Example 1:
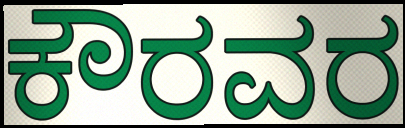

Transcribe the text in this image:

ಕೌರವರ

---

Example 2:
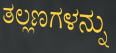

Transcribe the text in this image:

ತಲ್ಲಣಗಳನ್ನು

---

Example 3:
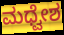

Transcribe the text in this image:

ಮಧ್ವೇಶ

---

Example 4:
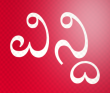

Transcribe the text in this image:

ವಿನ್ದಿ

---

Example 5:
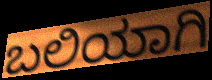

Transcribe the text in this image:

ಬಲಿಯಾಗಿ